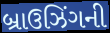
બ્રાઉઝિંગની